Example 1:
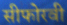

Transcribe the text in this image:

सीफोरवी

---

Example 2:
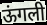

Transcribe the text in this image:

ऊंगली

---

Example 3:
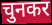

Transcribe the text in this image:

चुनकर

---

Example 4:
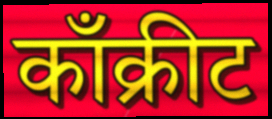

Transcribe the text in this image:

काँक्रीट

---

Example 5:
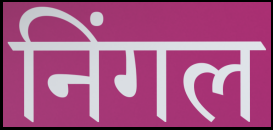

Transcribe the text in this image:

निंगल